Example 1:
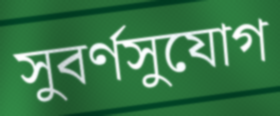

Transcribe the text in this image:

সুবর্ণসুযোগ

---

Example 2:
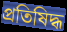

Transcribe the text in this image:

প্রতিষিদ্ধ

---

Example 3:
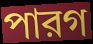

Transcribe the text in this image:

পারগ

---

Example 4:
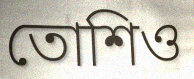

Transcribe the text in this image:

তোশিও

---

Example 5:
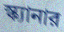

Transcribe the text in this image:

স্ক্যানার